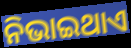
ନିଭାଇଥାଏ